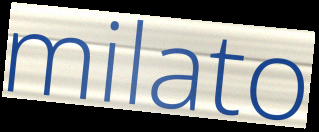
milato